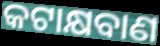
କଟାକ୍ଷବାଣ